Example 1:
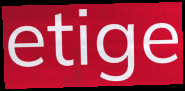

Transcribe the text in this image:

etige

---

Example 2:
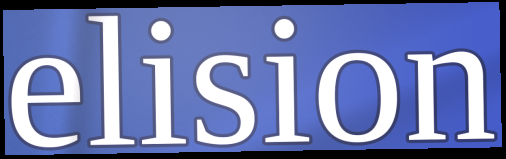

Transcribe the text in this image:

elision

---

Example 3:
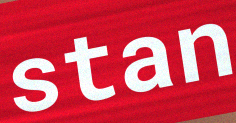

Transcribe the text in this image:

stan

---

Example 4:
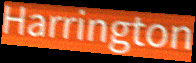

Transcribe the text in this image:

Harrington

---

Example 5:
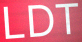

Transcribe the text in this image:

LDT